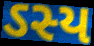
ઽસ્ય